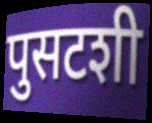
पुसटशी